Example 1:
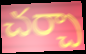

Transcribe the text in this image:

చర్చా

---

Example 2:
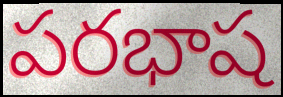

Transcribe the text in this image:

పరభాష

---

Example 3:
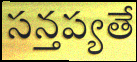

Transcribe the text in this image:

సన్తప్యతే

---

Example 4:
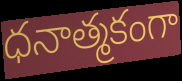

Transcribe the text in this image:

ధనాత్మకంగా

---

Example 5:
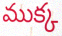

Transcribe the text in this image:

ముక్క